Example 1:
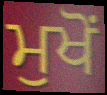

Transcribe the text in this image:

ਮੁਖੋਂ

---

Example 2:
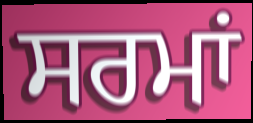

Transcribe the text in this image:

ਸਰਮਾਂ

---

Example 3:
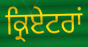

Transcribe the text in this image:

ਕ੍ਰਿਏਟਰਾਂ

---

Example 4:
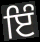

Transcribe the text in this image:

ਇੰ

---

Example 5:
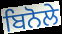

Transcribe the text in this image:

ਬਿਨੋਲੇ